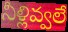
నీళ్లివ్వలే